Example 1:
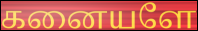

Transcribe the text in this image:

கனையளே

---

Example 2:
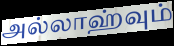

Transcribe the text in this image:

அல்லாஹ்வும்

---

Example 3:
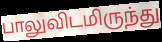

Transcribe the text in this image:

பாலுவிடமிருந்து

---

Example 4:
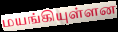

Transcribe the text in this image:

மயங்கியுள்ளன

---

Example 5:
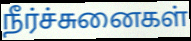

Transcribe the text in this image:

நீர்ச்சுனைகள்